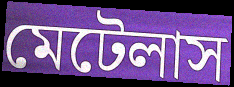
মেটেলাস